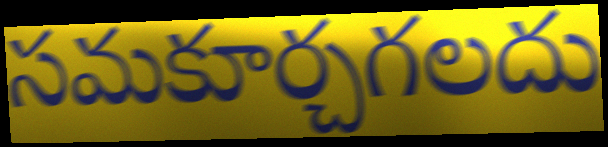
సమకూర్చగలదు